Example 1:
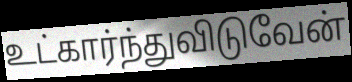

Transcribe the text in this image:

உட்கார்ந்துவிடுவேன்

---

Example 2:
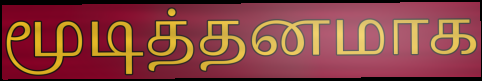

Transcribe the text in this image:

மூடித்தனமாக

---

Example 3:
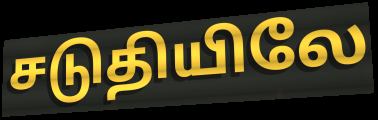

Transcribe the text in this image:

சடுதியிலே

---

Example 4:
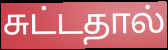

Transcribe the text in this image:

சுட்டதால்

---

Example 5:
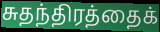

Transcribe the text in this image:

சுதந்திரத்தைக்